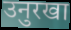
उनुरखा